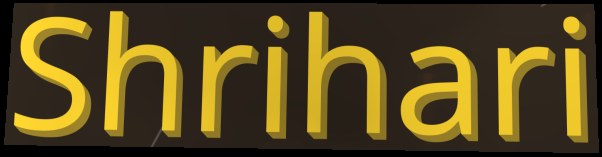
Shrihari